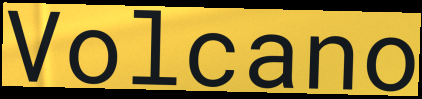
Volcano